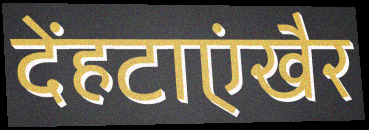
देंहटाएंखैर